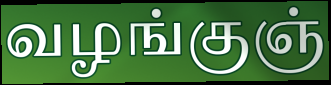
வழங்குஞ்